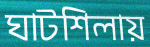
ঘাটশিলায়